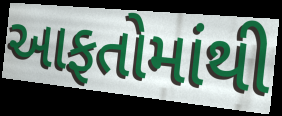
આફતોમાંથી